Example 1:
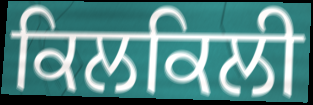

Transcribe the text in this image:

ਕਿਲਕਿਲੀ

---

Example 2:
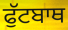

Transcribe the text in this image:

ਫੁੱਟਬਾਥ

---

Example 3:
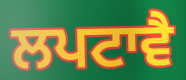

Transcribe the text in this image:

ਲਪਟਾਵੈ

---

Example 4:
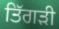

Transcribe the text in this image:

ਤਿੱਗੜੀ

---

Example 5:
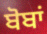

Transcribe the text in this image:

ਬੋਬਾਂ